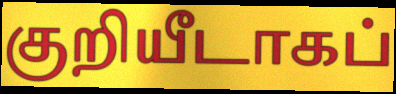
குறியீடாகப்